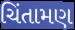
ચિંતામણ